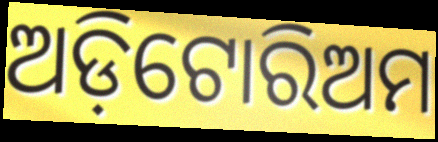
ଅଡ଼ିଟୋରିଅମ